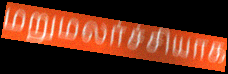
மறுமலர்ச்சியாக